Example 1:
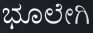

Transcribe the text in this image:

ಭೂಲೇಗಿ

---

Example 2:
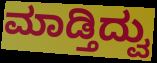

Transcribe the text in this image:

ಮಾಡ್ತಿದ್ವು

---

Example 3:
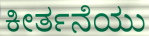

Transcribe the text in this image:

ಕೀರ್ತನೆಯು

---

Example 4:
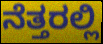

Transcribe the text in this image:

ನೆತ್ತರಲ್ಲಿ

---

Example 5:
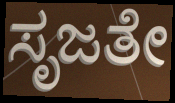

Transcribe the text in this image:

ಸೃಜತೇ